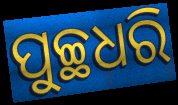
ପୁଚ୍ଛଧରି